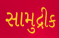
સામુદ્રીક